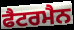
ਫੈਟਰਮੈਨ